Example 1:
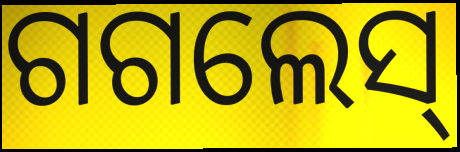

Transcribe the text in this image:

ଗଗଲେସ୍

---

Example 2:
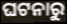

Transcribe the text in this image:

ଘଟନାରୁ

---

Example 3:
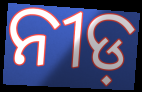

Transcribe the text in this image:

ନୀଡ଼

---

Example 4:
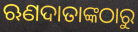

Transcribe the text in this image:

ଋଣଦାତାଙ୍କଠାରୁ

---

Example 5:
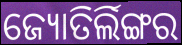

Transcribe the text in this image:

ଜ୍ୟୋତିର୍ଲିଙ୍ଗର